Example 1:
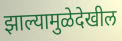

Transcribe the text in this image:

झाल्यामुळेदेखील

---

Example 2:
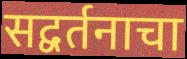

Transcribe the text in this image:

सद्वर्तनाचा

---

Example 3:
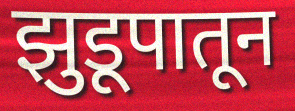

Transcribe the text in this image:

झुडूपातून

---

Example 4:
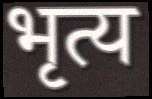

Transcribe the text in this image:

भृत्य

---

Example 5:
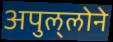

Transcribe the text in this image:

अपुल्लोने